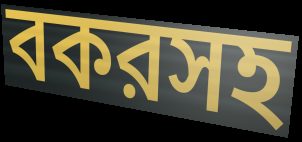
বকরসহ